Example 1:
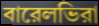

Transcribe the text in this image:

বারেলভিরা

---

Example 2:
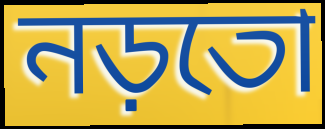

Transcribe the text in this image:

নড়তো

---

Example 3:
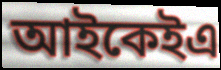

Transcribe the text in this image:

আইকেইএ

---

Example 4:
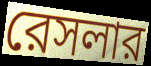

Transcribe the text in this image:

রেসলার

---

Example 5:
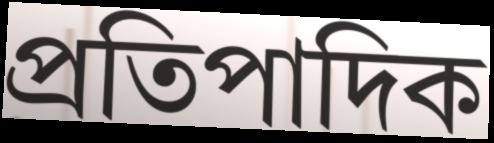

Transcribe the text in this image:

প্রতিপাদিক